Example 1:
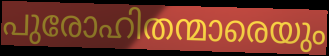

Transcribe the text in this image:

പുരോഹിതന്മാരെയും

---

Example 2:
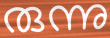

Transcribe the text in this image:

രുന്നു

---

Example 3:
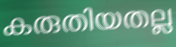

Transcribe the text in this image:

കരുതിയതല്ല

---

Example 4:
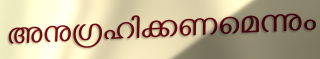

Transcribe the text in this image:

അനുഗ്രഹിക്കണമെന്നും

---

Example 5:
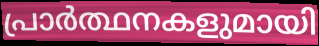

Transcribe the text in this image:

പ്രാർത്ഥനകളുമായി